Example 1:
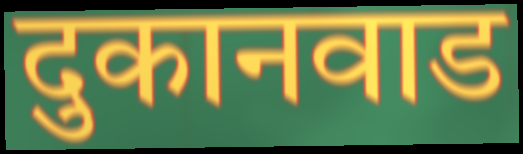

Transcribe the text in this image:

दुकानवाड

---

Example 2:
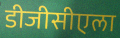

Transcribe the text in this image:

डीजीसीएला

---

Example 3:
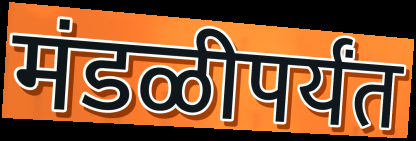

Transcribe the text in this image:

मंडळीपर्यंत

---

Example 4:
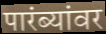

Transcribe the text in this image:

पारंब्यांवर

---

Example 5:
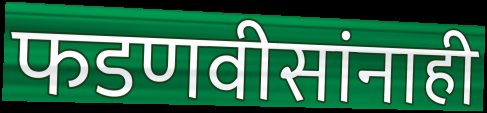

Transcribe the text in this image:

फडणवीसांनाही